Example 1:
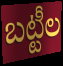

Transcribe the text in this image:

బట్టీల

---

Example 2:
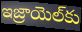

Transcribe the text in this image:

ఇజ్రాయెల్‌కు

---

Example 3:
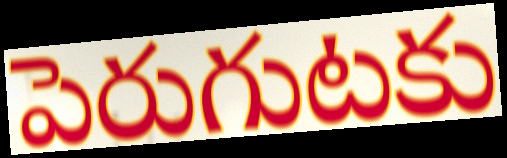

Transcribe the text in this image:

పెరుగుటకు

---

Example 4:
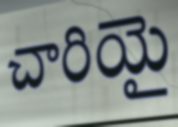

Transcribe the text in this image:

చారియై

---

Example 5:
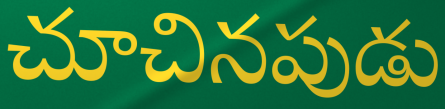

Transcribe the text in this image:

చూచినపుడు